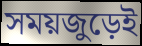
সময়জুড়েই